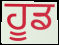
ਹੂਡ